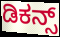
ಡಿಕನ್ಸ್